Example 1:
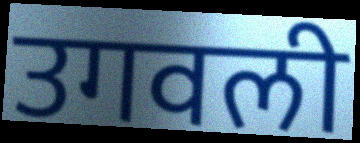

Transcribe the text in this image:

उगवली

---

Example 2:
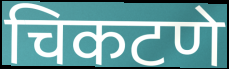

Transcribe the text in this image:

चिकटणे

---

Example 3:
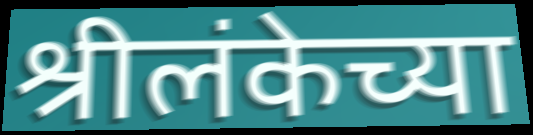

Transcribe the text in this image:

श्रीलंकेच्या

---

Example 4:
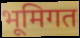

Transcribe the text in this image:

भूमिगत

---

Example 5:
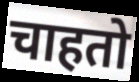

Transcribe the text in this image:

चाहतो